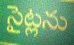
సైట్లను